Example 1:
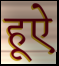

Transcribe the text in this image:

हूऐ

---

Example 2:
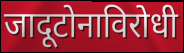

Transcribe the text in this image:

जादूटोनाविरोधी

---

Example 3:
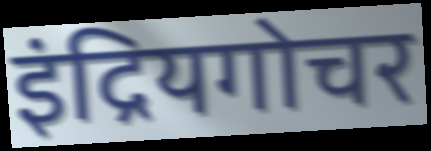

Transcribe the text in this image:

इंद्रियगोचर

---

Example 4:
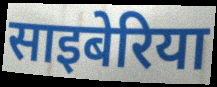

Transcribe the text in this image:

साइबेरिया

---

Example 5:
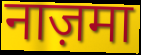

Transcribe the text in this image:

नाज़मा